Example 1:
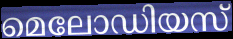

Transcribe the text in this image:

മെലോഡിയസ്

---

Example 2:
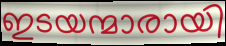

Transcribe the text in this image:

ഇടയന്മാരായി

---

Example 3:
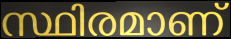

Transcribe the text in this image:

സ്ഥിരമാണ്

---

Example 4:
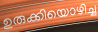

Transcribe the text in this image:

ഉരുക്കിയൊഴിച്ച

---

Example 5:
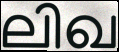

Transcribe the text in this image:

ലിഖ